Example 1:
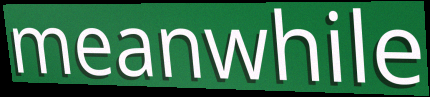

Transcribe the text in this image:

meanwhile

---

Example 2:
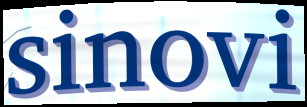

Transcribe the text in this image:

sinovi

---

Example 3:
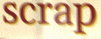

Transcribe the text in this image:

scrap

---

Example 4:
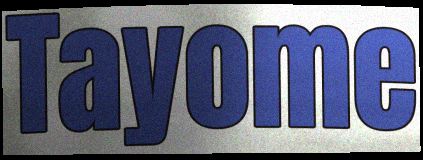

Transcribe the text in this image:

Tayome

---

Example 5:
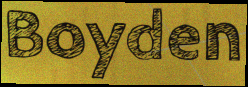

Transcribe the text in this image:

Boyden